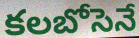
కలబోసెనే